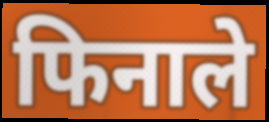
फिनाले